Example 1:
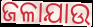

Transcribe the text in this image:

ଜଳାଯାଉ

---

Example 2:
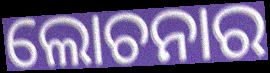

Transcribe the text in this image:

ଲୋଚନାର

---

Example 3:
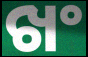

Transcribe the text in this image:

ଖଂ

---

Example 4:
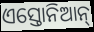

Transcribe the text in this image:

ଏସ୍ତୋନିଆନ୍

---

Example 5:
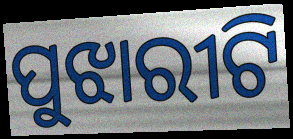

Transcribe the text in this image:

ପୁଝାରୀଟି